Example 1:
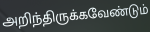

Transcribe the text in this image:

அறிந்திருக்கவேண்டும்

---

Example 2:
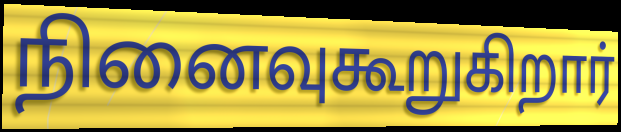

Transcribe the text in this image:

நினைவுகூறுகிறார்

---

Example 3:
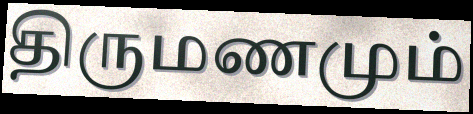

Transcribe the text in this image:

திருமணமும்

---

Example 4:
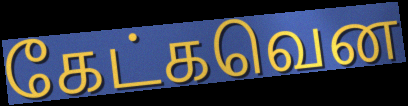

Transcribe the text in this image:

கேட்கவென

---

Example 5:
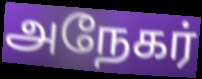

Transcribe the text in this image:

அநேகர்